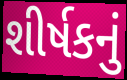
શીર્ષકનું